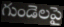
గుండెలపై